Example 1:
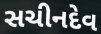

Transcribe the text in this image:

સચીનદેવ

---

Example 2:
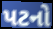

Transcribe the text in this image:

પટનો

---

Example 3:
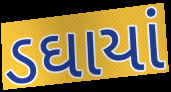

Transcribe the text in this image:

ડઘાયાં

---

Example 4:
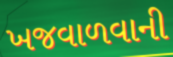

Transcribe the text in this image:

ખજવાળવાની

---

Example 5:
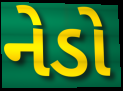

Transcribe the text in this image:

નેડો